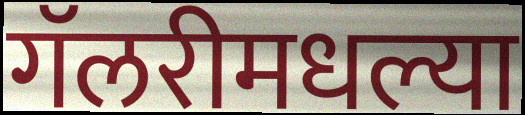
गॅलरीमधल्या